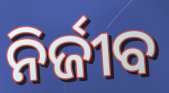
ନିର୍ଜୀବ